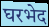
घरभेद